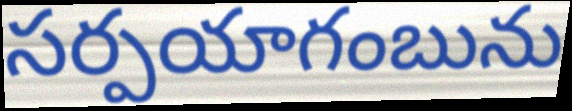
సర్పయాగంబును